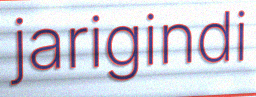
jarigindi